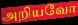
அறியவோ